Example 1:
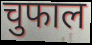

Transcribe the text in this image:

चुफाल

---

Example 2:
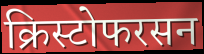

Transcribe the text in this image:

क्रिस्टोफरसन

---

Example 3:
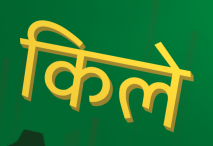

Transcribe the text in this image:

किले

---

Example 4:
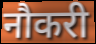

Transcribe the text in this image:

नौकरी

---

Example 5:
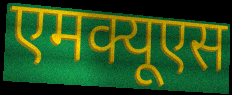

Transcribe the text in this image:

एमक्यूएस